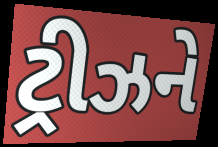
ટ્રીઝને